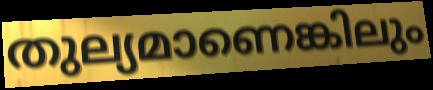
തുല്യമാണെങ്കിലും